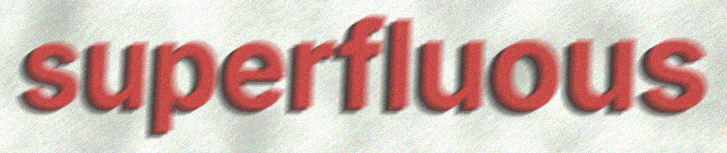
superfluous